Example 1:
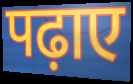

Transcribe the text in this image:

पढ़ाए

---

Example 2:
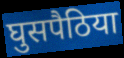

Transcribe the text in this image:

घुसपैठिया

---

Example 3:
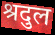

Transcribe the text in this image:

श्रदुल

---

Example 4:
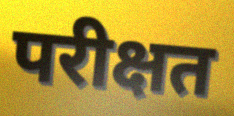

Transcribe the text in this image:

परीक्षत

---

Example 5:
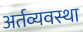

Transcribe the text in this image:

अर्तव्यवस्था